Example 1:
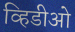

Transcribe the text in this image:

व्हिडीओ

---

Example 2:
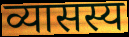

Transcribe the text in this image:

व्यासस्य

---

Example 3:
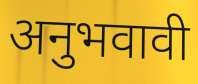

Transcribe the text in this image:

अनुभवावी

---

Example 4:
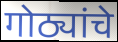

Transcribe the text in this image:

गोठ्यांचे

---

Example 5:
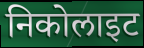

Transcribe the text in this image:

निकोलाइट